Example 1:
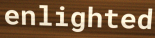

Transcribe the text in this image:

enlighted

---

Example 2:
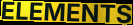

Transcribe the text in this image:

ELEMENTS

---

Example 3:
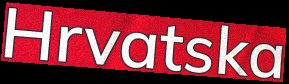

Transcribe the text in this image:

Hrvatska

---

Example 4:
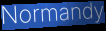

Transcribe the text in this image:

Normandy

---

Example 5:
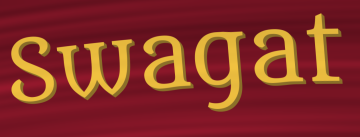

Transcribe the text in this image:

Swagat